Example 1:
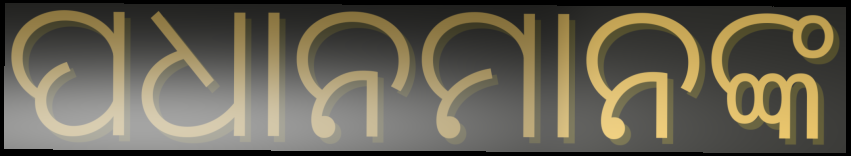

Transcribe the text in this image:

ପଧାନମାନଙ୍କ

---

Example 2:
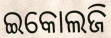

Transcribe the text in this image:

ଇକୋଲଜି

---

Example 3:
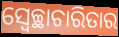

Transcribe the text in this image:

ସ୍ୱେଚ୍ଛାଚାରିତାର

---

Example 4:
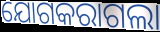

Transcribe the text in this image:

ଯୋଗକରାଗଲା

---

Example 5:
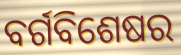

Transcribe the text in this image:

ବର୍ଗବିଶେଷର